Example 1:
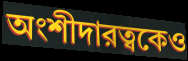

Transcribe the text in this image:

অংশীদারত্বকেও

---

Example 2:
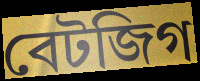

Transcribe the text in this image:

বেটজিগ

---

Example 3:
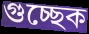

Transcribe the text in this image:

গুচ্ছেক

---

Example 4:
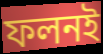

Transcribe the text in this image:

ফলনই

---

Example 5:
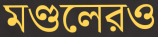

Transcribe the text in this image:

মণ্ডলেরও